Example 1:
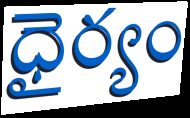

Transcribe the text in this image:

ధైర్యం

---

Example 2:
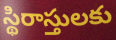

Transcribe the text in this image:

స్థిరాస్తులకు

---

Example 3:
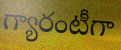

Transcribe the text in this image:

గ్యారంటీగా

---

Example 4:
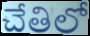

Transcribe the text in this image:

చేతిలో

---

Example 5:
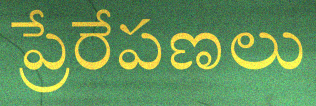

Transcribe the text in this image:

ప్రేరేపణలు